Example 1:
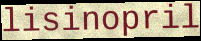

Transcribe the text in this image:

lisinopril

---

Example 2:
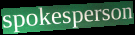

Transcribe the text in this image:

spokesperson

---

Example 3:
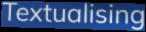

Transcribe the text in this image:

Textualising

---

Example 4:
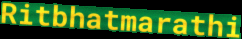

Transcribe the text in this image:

Ritbhatmarathi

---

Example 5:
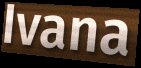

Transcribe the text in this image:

Ivana